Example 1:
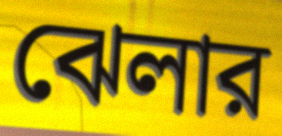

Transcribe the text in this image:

ঝেলার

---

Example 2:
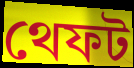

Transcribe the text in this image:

থেফট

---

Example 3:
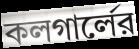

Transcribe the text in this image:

কলগার্লের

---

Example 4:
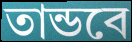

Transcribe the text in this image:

তান্ডবে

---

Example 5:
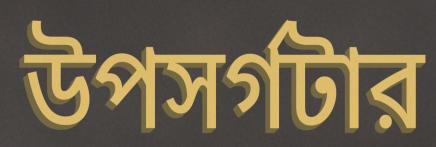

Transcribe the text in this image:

উপসর্গটার